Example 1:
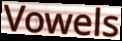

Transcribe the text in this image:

Vowels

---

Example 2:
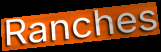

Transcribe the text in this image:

Ranches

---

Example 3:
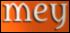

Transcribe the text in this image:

mey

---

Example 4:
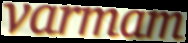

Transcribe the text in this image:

varmam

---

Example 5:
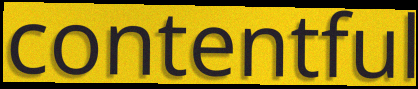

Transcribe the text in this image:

contentful